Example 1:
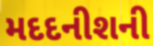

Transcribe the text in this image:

મદદનીશની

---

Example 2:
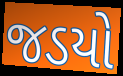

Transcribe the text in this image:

જડયો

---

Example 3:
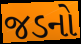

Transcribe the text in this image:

જડનો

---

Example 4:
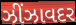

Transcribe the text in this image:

ઝીંઝાવદર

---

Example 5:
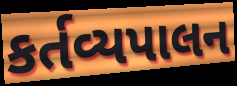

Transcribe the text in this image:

કર્તવ્યપાલન